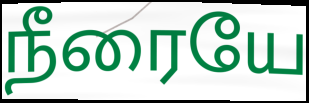
நீரையே